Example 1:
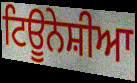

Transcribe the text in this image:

ਟਿਊਨੇਸ਼ੀਆ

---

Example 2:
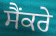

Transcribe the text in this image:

ਸੈਂਕਰੇ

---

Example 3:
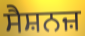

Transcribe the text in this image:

ਸੈਸ਼ਨਜ਼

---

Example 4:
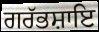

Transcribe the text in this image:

ਗਰੱਭਸ਼ਾਇ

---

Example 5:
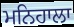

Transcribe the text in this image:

ਮਨਿਹਾਲਾ